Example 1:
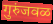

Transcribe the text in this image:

गुरुंजवळ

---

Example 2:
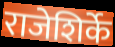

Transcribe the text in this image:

राजेशिर्के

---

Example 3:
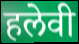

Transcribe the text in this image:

हलेवी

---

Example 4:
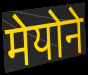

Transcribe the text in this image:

मेयोने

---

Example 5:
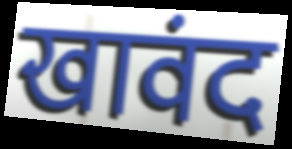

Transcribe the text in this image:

खावंद